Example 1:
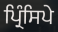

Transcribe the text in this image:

ਪ੍ਰਿੰਸਿਪੇ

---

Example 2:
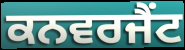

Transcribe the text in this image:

ਕਨਵਰਜੈਂਟ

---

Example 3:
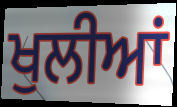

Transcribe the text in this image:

ਖੁਲੀਆਂ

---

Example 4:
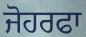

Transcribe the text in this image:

ਜੋਹਰਫਾ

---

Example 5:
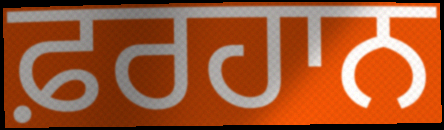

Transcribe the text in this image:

ਫ਼ਰਹਾਨ